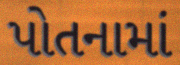
પોતનામાં